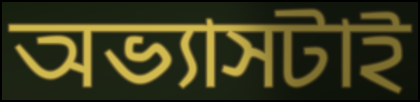
অভ্যাসটাই